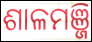
ଶାଳମଞ୍ଜି